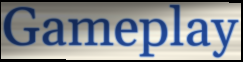
Gameplay